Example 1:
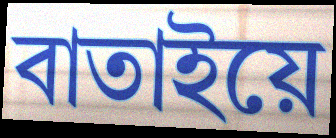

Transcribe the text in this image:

বাতাইয়ে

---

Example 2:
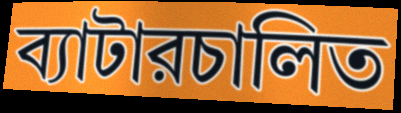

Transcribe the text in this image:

ব্যাটারচালিত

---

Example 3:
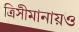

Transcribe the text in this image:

ত্রিসীমানায়ও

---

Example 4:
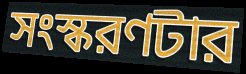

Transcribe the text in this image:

সংস্করণটার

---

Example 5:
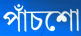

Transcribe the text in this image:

পাঁচশো